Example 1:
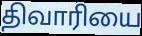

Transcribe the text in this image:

திவாரியை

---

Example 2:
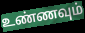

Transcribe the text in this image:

உண்ணவும்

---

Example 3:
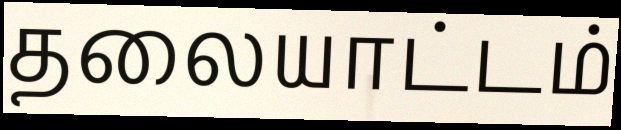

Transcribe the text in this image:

தலையாட்டம்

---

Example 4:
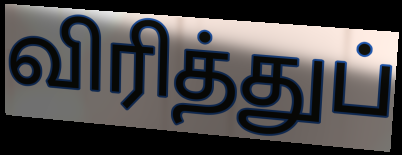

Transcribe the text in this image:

விரித்துப்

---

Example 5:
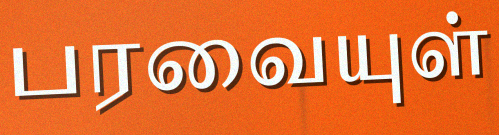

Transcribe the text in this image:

பரவையுள்